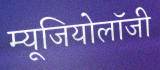
म्यूजियोलॉजी